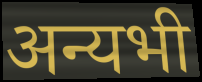
अन्यभी